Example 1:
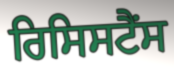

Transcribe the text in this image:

ਰਿਸਿਸਟੈਂਸ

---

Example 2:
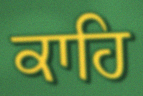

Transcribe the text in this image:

ਕਾਹਿ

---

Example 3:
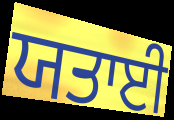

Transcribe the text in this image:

ਯਤਾਈ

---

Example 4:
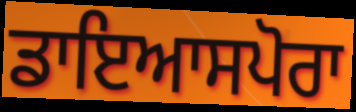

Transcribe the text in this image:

ਡਾਇਆਸਪੋਰਾ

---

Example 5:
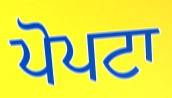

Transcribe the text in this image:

ਪੋਪਟਾ